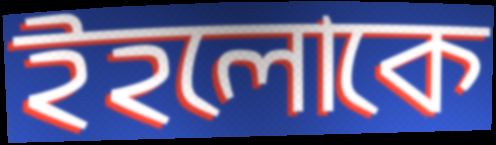
ইহলোকে